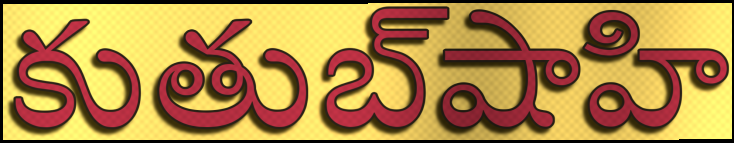
కుతుబ్‌షాహి